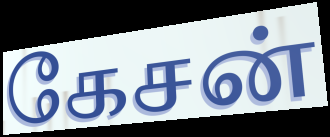
கேசன்